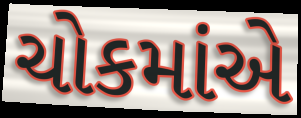
ચોકમાંએ